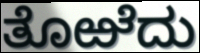
ತೊಱೆದು